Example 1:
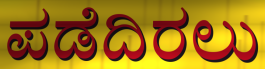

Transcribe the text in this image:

ಪಡೆದಿರಲು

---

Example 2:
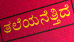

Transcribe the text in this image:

ತಲೆಯನೆತ್ತಿದೆ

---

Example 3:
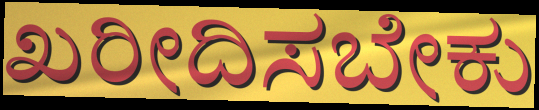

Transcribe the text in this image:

ಖರೀದಿಸಬೇಕು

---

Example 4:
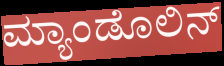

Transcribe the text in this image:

ಮ್ಯಾಂಡೊಲಿನ್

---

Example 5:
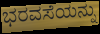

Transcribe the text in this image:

ಭರವಸೆಯನ್ನು